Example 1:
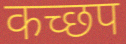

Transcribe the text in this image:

कच्छप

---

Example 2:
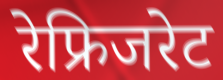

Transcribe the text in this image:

रेफ्रिजरेट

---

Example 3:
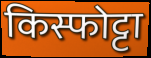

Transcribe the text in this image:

किस्फोट्टा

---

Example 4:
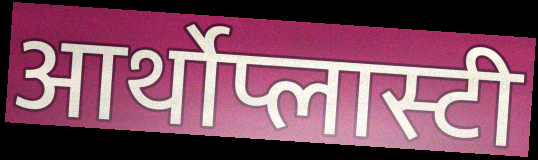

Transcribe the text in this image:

आर्थोप्लास्टी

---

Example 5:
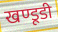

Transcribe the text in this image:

खण्डूडी